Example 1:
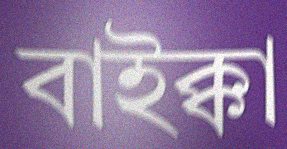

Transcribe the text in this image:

বাইক্কা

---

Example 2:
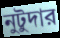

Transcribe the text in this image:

নুটুদার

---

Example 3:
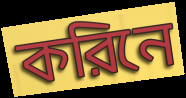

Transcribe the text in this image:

করিনে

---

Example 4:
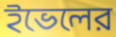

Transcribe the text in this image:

ইভেলের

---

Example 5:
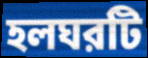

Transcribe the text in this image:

হলঘরটি